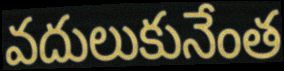
వదులుకునేంత